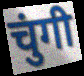
चुंगी